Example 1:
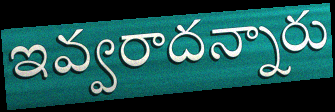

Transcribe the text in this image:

ఇవ్వరాదన్నారు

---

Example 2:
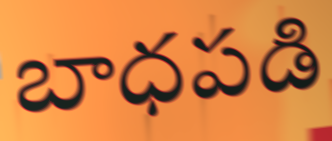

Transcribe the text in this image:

బాధపడి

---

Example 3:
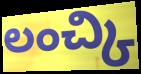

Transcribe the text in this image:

లంచ్కి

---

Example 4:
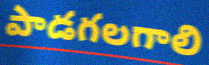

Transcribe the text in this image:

పాడగలగాలి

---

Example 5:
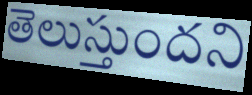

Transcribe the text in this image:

తెలుస్తుందని